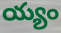
య్యం